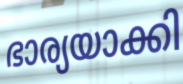
ഭാര്യയാക്കി